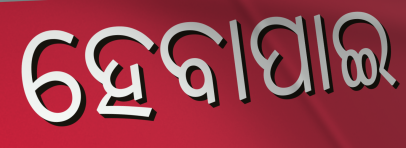
ହେବାପାଇ